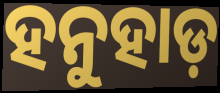
ହନୁହାଡ଼